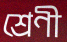
শ্রেণী